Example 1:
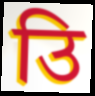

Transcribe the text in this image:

उि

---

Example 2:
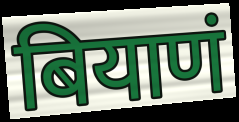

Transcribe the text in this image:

बियाणं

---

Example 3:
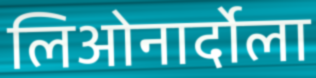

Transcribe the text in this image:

लिओनार्दोला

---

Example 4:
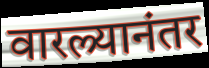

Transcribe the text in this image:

वारल्यानंतर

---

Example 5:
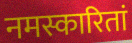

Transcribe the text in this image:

नमस्कारितां